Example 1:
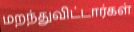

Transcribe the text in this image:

மறந்துவிட்டார்கள்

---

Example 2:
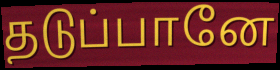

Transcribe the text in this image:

தடுப்பானே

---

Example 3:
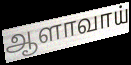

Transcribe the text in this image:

ஆளாவாய்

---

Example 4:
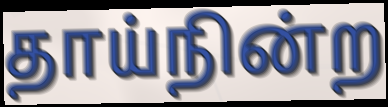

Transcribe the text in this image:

தாய்நின்ற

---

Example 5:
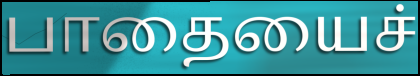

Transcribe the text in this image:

பாதையைச்